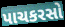
પાચકરસો